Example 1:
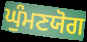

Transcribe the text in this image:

ਘੁੰਮਣਯੋਗ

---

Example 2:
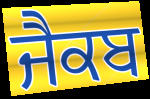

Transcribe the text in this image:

ਜੈਕਬ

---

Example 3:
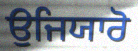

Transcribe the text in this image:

ਉਜਿਯਾਰੋ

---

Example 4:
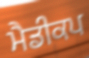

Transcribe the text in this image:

ਮੈਡੀਕਪ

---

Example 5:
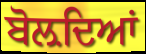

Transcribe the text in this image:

ਬੋਲ਼ਦਿਆਂ